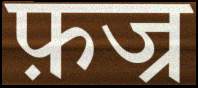
फ़ज्र